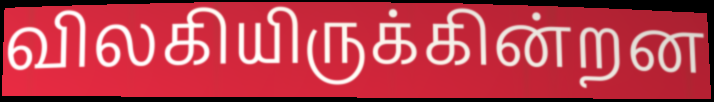
விலகியிருக்கின்றன